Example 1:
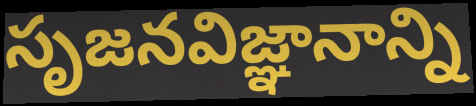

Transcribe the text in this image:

సృజనవిజ్ఞానాన్ని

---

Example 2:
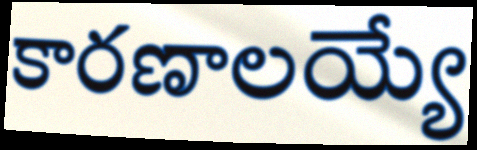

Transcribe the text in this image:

కారణాలయ్యే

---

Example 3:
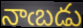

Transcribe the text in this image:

నాఁబడు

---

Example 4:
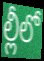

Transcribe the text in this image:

ల్లీలో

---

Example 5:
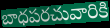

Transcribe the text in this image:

బాధపరచువారికి